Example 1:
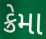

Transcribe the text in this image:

ક્રેમા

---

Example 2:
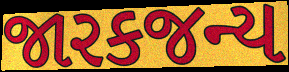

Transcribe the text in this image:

જારકજન્ય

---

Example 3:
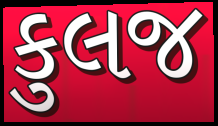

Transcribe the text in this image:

કુલજ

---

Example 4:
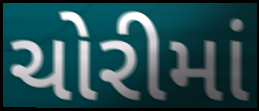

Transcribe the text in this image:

ચોરીમાં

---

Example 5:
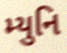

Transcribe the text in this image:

મ્યુનિ